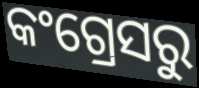
କଂଗ୍ରେସରୁ